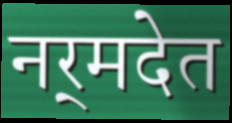
नर्मदेत